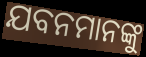
ଯବନମାନଙ୍କୁ